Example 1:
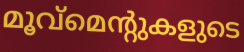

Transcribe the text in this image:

മൂവ്മെന്റുകളുടെ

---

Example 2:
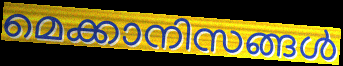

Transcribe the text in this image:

മെക്കാനിസങ്ങൾ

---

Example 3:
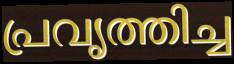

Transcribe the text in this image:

പ്രവൃത്തിച്ച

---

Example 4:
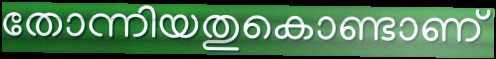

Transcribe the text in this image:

തോന്നിയതുകൊണ്ടാണ്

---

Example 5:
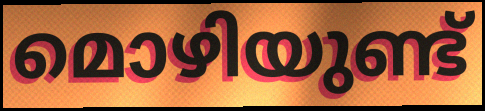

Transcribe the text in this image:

മൊഴിയുണ്ട്